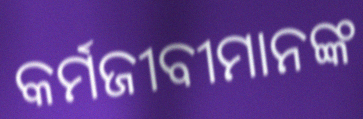
କର୍ମଜୀବୀମାନଙ୍କ